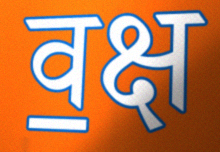
व॒क्ष